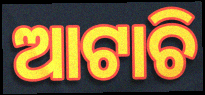
ଆଟାଚି